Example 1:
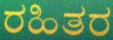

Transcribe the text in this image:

ರಹಿತರ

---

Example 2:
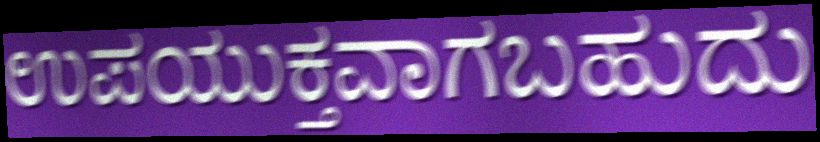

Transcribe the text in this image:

ಉಪಯುಕ್ತವಾಗಬಹುದು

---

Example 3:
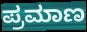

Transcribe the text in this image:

ಪ್ರಮಾಣ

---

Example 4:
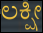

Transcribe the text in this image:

ಲಕ್ಷೀ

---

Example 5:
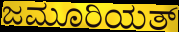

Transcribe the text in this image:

ಜಮೂರಿಯತ್